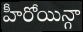
హీరోయిన్గా